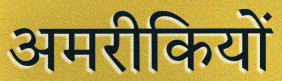
अमरीकियों